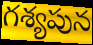
గశ్యపున